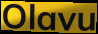
Olavu